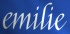
emilie